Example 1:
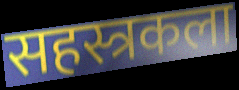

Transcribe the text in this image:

सहस्त्रकला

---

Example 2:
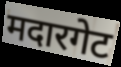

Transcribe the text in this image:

मदारगेट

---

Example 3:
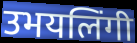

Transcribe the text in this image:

उभयलिंगी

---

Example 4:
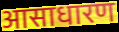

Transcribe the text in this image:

आसाधारण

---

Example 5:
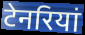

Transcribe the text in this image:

टेनरियां